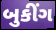
બુકીંગ